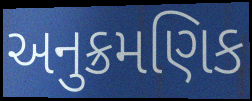
અનુક્રમણિક